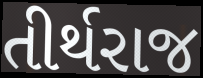
તીર્થરાજ